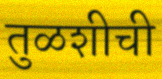
तुळशीची